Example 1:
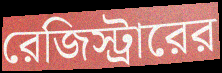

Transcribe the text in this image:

রেজিস্ট্রারের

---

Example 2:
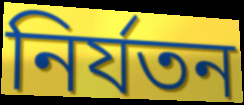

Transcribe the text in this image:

নির্যতন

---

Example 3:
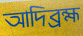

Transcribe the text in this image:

আদিব্রহ্ম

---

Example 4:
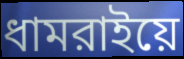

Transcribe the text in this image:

ধামরাইয়ে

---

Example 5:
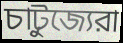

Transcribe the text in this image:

চাটুজ্যেরা